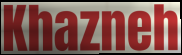
Khazneh